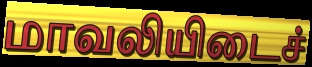
மாவலியிடைச்